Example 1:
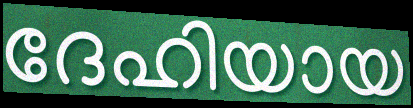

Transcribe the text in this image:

ദേഹിയായ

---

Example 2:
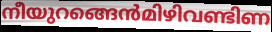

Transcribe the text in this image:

നീയുറങ്ങെൻമിഴിവണ്ടിണ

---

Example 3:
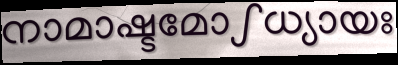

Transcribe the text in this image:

നാമാഷ്ടമോഽധ്യായഃ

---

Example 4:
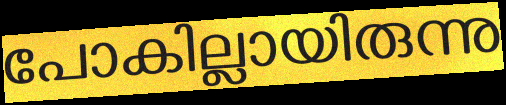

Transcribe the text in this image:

പോകില്ലായിരുന്നു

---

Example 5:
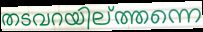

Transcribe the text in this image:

തടവറയില്ത്തന്നെ